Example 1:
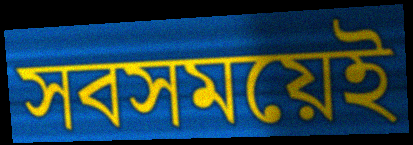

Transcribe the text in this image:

সবসময়েই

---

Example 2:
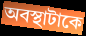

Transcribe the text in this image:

অবস্থাটাকে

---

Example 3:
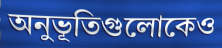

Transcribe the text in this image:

অনুভূতিগুলোকেও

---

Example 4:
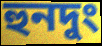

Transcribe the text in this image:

হুনদুং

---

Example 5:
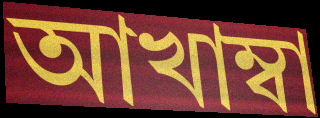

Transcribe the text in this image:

আখাম্বা